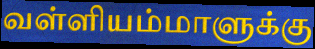
வள்ளியம்மாளுக்கு